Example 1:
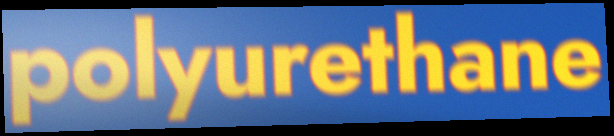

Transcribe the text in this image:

polyurethane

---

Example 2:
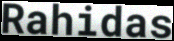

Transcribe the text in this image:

Rahidas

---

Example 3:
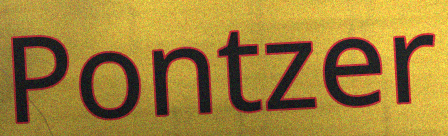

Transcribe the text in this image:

Pontzer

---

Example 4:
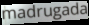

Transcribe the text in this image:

madrugada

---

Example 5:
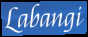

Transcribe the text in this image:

Labangi